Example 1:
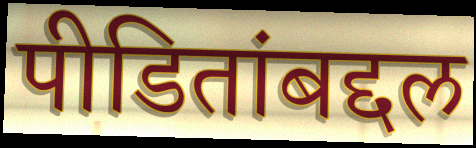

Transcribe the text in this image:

पीडितांबद्दल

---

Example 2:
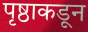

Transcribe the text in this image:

पृष्ठाकडून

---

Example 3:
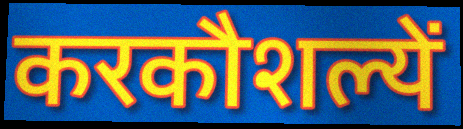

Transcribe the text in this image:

करकौशल्यें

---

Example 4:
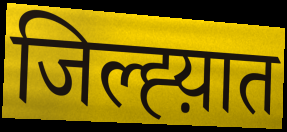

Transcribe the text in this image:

जिल्ह्य़ात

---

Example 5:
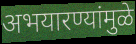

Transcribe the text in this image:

अभयारण्यांमुळे